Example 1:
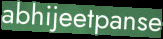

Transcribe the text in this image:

abhijeetpanse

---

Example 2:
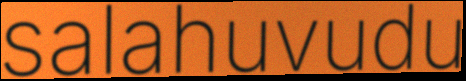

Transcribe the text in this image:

salahuvudu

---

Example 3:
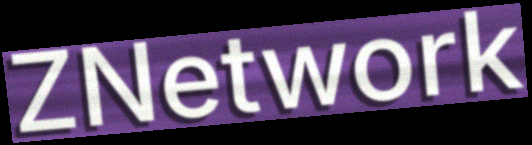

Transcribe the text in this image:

ZNetwork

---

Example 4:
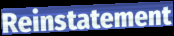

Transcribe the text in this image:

Reinstatement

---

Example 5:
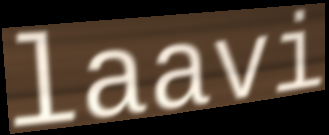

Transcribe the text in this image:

laavi